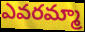
ఎవరమ్మా